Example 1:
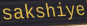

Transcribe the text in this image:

sakshiye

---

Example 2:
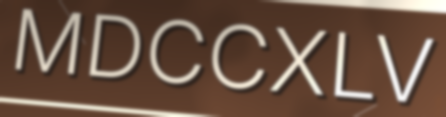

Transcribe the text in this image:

MDCCXLV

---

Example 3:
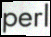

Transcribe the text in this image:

perl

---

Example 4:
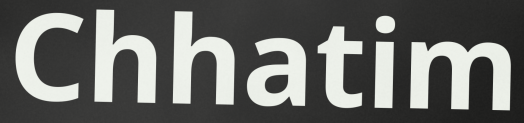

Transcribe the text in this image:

Chhatim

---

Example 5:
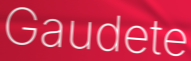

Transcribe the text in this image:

Gaudete